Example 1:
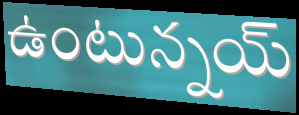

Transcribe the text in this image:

ఉంటున్నయ్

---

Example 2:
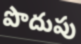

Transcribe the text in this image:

పొదుపు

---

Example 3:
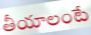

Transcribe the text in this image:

తీయాలంటే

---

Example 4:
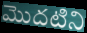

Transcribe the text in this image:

మొదటిని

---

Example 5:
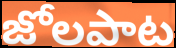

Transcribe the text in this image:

జోలపాట